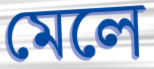
মেলে